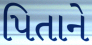
પિતાને